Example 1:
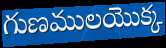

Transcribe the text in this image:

గుణములయొక్క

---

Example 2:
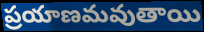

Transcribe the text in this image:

ప్రయాణమవుతాయి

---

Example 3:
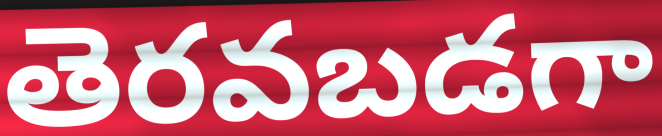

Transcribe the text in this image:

తెరవబడగా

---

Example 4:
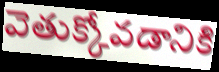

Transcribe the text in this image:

వెతుక్కోవడానికి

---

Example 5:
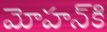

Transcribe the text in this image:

మోహన్‌కి